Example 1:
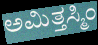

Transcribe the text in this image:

ಅಮಿತ್ತಸ್ಮಿಂ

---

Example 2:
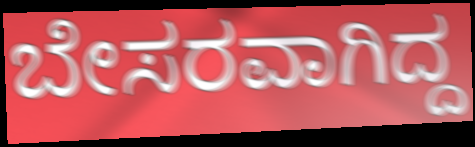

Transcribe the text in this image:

ಬೇಸರವಾಗಿದ್ದ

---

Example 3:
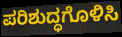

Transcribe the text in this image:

ಪರಿಶುದ್ಧಗೊಳಿಸಿ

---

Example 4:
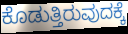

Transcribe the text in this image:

ಕೊಡುತ್ತಿರುವುದಕ್ಕೆ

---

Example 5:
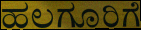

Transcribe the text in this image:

ಹಲಗೂರಿಗೆ